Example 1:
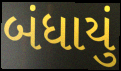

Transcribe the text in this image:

બંધાયું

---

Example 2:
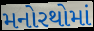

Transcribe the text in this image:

મનોરથોમાં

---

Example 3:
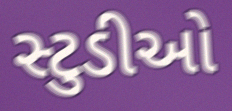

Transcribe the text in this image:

સ્ટુડીઓ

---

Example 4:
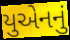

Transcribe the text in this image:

યુએનનું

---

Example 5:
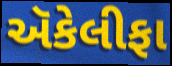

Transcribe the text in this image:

ઍકેલીફા